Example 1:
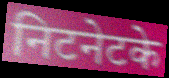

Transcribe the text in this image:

निटनेटके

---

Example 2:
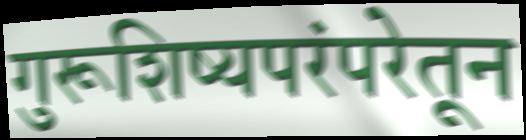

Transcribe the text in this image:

गुरूशिष्यपरंपरेतून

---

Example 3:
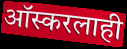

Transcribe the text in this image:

ऑस्करलाही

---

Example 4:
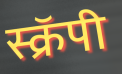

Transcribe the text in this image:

स्क्रॅपी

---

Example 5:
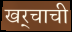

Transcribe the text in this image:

खर्चाची